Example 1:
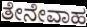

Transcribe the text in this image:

ತೇನೇವಾಹ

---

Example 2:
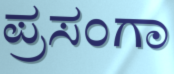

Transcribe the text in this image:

ಪ್ರಸಂಗಾ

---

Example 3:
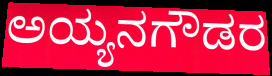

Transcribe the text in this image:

ಅಯ್ಯನಗೌಡರ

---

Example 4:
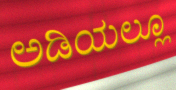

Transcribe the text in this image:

ಅಡಿಯಲ್ಲೂ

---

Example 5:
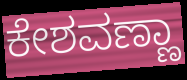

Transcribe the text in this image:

ಕೇಶವಣ್ಣಾ